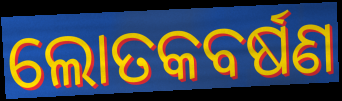
ଲୋତକବର୍ଷଣ